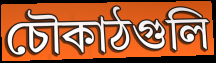
চৌকাঠগুলি